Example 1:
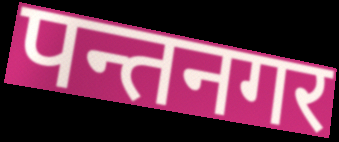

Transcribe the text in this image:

पन्तनगर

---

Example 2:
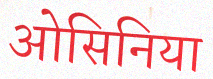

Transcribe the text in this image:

ओसिनिया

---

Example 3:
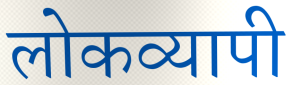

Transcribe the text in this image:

लोकव्यापी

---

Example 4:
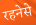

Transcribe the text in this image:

रहनेसे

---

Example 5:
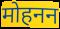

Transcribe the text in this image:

मोहनन